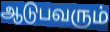
ஆடுபவரும்